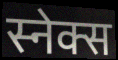
स्नेक्स